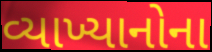
વ્યાખ્યાનોના